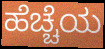
ಹೆಚ್ಚೆಯ